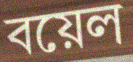
বয়েল